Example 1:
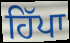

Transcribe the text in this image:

ਹਿੱਪਾ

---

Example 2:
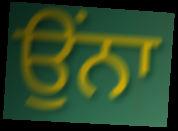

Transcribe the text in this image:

ਉੰਨਾ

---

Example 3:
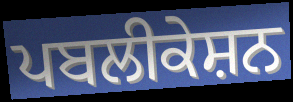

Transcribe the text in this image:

ਪਬਲੀਕੇਸ਼ਨ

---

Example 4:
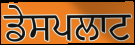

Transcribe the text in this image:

ਡੇਸਪਲਾਟ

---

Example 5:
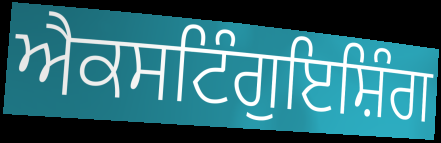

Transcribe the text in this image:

ਐਕਸਟਿੰਗੁਇਸ਼ਿੰਗ